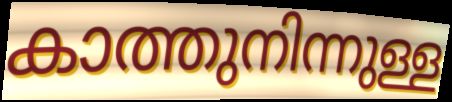
കാത്തുനിന്നുള്ള